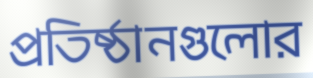
প্রতিষ্ঠানগুলোর